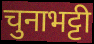
चुनाभट्टी